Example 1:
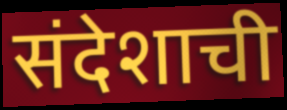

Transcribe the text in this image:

संदेशाची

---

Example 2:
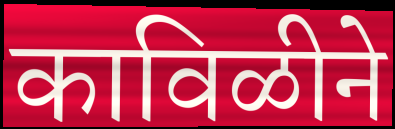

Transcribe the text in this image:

काविळीने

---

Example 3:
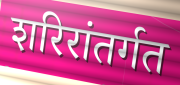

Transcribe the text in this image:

शरिरांतर्गत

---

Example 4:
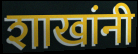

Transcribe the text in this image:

शाखांनी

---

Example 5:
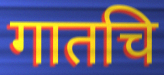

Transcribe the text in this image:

गातचि